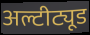
अल्टीट्यूड